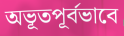
অভূতপূর্বভাবে